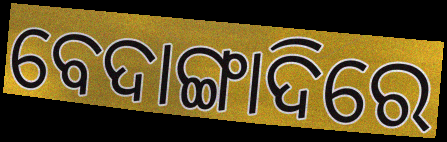
ବେଦାଙ୍ଗାଦିରେ